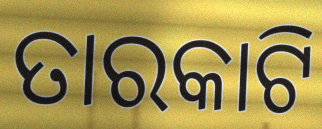
ତାରକାଟି